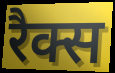
रैक्स